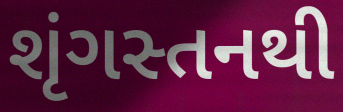
શૃંગસ્તનથી